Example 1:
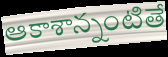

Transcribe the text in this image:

ఆకాశాన్నంటితే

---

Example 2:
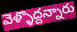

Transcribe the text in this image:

వెళ్ళొద్దన్నారు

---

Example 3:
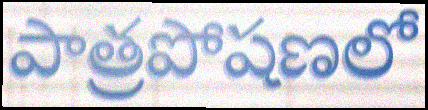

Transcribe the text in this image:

పాత్రపోషణలో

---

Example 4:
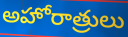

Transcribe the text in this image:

అహోరాత్రులు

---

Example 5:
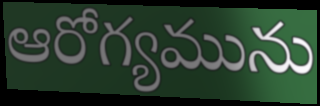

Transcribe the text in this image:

ఆరోగ్యమును